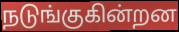
நடுங்குகின்றன